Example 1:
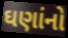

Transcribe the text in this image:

ઘણાંનો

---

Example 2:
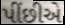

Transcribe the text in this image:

પીંછીએ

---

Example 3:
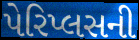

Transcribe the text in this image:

પેરિપ્લસની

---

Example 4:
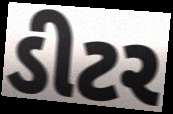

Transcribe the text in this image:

ડીટર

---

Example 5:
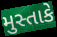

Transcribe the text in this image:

મુસ્તાકે